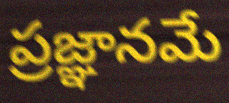
ప్రజ్ఞానమే